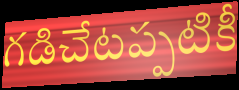
గడిచేటప్పటికీ